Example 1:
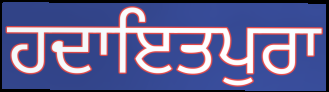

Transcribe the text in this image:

ਹਦਾਇਤਪੁਰਾ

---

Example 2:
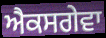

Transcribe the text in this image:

ਐਕਸਗੇਵਾ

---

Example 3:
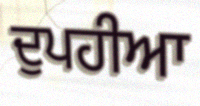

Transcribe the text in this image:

ਦੁਪਹੀਆ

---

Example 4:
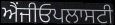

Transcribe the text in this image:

ਐਂਜੀਓਪਲਾਸਟੀ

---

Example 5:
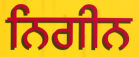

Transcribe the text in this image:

ਨਿਗੀਨ